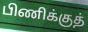
பிணிக்குத்